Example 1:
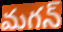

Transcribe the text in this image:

మగన్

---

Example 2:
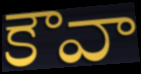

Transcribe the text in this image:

కౌవా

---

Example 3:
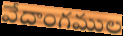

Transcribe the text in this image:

వేదాంగముల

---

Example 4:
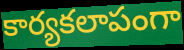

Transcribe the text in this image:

కార్యకలాపంగా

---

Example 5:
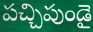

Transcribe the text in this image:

పచ్చిపుండై